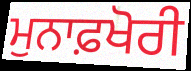
ਮੁਨਾਫ਼ਖੋਰੀ